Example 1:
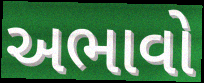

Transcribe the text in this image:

અભાવો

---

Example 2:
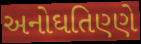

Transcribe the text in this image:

અનોઘતિણ્ણે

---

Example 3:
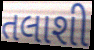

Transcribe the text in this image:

તલાશી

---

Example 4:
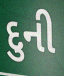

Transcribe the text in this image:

દુની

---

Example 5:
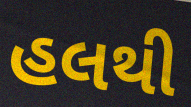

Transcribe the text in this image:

હલથી